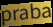
praba